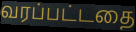
வரப்பட்டதை